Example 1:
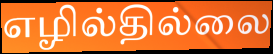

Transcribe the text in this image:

எழில்தில்லை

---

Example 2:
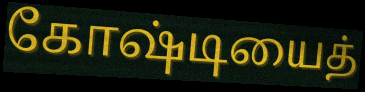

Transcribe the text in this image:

கோஷ்டியைத்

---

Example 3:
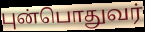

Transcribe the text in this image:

புன்பொதுவர்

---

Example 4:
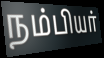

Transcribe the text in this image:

நம்பியர்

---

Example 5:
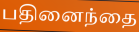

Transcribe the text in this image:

பதினைந்தை